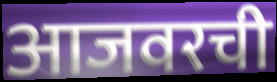
आजवरची